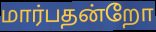
மார்பதன்றோ